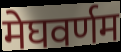
मेघवर्णम